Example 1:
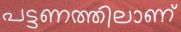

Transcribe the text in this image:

പട്ടണത്തിലാണ്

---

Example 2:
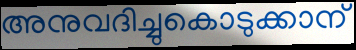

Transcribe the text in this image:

അനുവദിച്ചുകൊടുക്കാന്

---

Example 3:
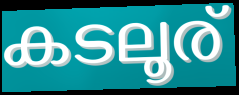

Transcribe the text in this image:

കടലൂര്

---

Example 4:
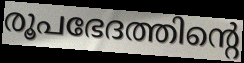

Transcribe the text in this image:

രൂപഭേദത്തിന്റെ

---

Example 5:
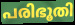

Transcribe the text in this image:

പരിഭൂതി